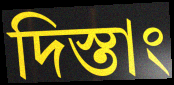
দিস্তাং